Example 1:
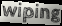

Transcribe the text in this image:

wiping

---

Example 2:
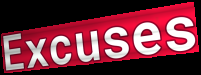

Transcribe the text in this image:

Excuses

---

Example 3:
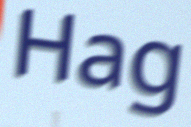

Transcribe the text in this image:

Hag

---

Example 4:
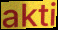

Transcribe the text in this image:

akti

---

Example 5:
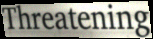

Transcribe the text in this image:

Threatening